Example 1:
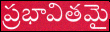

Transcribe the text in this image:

ప్రభావితమై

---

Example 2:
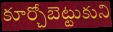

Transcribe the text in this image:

కూర్చోబెట్టుకుని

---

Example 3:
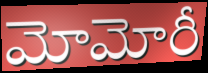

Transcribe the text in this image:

మోమోరీ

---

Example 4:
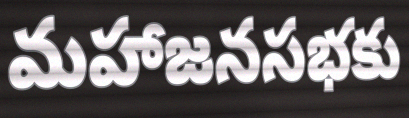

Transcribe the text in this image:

మహాజనసభకు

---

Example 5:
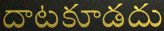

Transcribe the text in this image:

దాటకూడదు